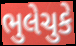
ભુલેચુકે